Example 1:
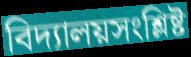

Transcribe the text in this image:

বিদ্যালয়সংশ্লিষ্ট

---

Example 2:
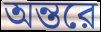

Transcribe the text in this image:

অন্তরে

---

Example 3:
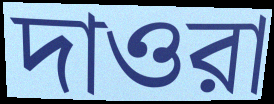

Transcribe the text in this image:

দাওরা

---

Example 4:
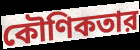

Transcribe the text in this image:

কৌণিকতার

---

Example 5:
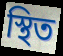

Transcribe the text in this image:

স্থিত